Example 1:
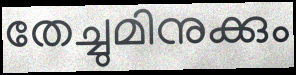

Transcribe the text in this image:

തേച്ചുമിനുക്കും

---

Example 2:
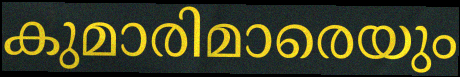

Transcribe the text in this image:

കുമാരിമാരെയും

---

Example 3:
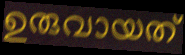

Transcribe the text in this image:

ഉരുവായത്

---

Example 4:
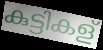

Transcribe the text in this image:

കുട്ടികള്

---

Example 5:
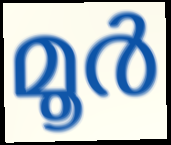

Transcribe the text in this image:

മൂർ